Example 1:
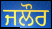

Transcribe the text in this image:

ਜਲੌਰ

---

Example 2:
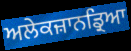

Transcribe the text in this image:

ਅਲੇਕਜ਼ਾਨਡ੍ਰਿਆ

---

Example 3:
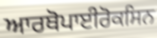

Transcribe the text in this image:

ਆਰਥੋਪਾਈਰੋਕਸਿਨ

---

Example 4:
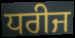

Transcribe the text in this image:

ਧਰੀਜ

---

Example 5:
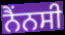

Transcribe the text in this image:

ਨੈਂਨਸੀ